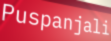
Puspanjali